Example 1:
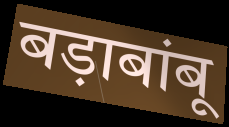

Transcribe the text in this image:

बड़ाबांबू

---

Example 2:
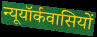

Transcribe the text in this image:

न्यूयॉर्कवासियों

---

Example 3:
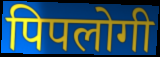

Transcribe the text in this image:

पिपलोगी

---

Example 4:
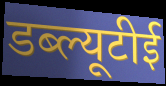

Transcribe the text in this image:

डब्ल्यूटीई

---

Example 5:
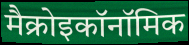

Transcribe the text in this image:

मैक्रोइकॉनॉमिक